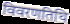
विवरणतिथि